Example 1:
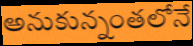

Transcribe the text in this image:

అనుకున్నంతలోనే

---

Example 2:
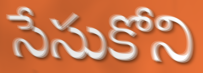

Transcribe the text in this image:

సేసుకోని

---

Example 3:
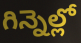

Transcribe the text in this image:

గిన్నెల్లో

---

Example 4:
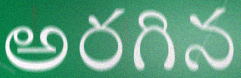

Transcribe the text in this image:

అరగిన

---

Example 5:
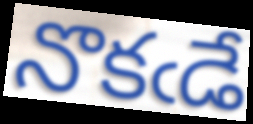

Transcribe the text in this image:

నొకఁడే